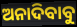
ଅନାଦିବାବୁ